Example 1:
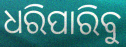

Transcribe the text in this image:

ଧରିପାରିବୁ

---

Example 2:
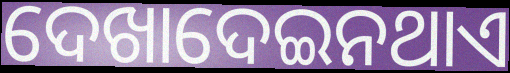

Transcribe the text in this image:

ଦେଖାଦେଇନଥାଏ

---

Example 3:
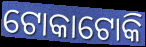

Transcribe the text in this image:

ଟୋକାଟୋକି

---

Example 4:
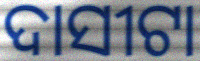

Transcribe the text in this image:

ଦାସୀଟା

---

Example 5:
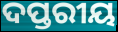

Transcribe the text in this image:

ଦପ୍ତରୀୟ